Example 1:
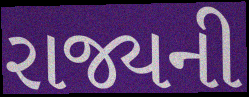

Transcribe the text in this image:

રાજ્યની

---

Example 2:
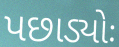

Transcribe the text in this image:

પછાડ્યોઃ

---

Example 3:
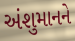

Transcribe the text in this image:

અંશુમાનને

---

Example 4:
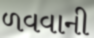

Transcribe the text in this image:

ળવવાની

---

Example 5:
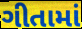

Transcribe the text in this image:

ગીતામાં